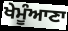
ਖੇਮੂੰਆਣਾ